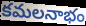
కమలనాభం